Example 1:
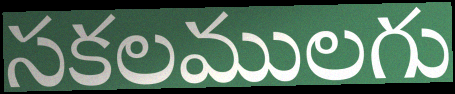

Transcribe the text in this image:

సకలములగు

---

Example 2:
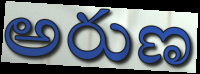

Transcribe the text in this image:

అరుణ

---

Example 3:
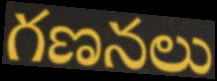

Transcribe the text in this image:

గణనలు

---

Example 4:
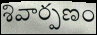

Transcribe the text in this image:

శివార్పణం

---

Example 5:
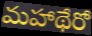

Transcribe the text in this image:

మహాథేరో